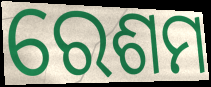
ରେଶମ